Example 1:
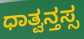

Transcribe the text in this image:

ಧಾತ್ವನ್ತಸ್ಸ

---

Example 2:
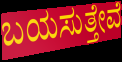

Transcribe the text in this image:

ಬಯಸುತ್ತೇವೆ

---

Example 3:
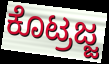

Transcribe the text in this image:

ಕೊಟ್ರಜ್ಜ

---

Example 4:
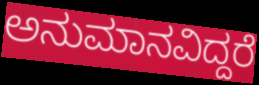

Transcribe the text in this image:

ಅನುಮಾನವಿದ್ದರೆ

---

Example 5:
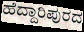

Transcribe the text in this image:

ಹೆದ್ದಾರಿಪುರದ